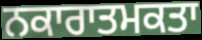
ਨਕਾਰਾਤਮਕਤਾ